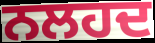
ਨਲਹਦ